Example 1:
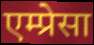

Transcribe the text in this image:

एम्प्रेसा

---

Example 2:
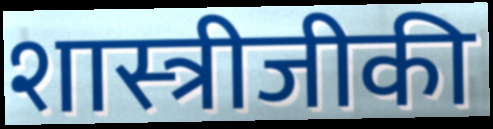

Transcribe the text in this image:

शास्त्रीजीकी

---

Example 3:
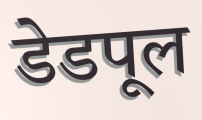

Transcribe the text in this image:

डेडपूल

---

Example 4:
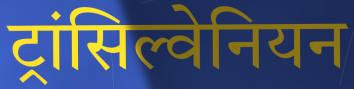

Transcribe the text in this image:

ट्रांसिल्वेनियन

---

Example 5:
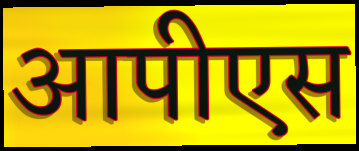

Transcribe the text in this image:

आपीएस